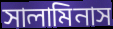
সালামিনাস